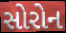
સોરોન